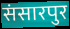
संसारपुर